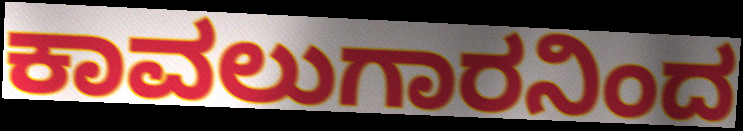
ಕಾವಲುಗಾರನಿಂದ